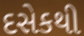
દસેકથી